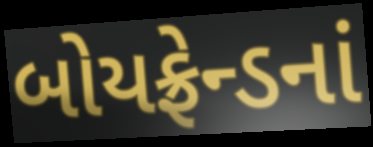
બોયફ્રેન્ડનાં